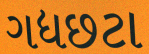
ગદ્યછટા